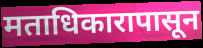
मताधिकारापासून